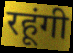
रहूंगी